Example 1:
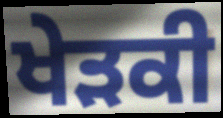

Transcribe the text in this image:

ਖੇੜਕੀ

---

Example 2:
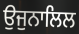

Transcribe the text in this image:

ਉਜੁਨਾਲਿਲ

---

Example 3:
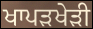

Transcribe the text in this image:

ਖਾਪੜਖੇੜੀ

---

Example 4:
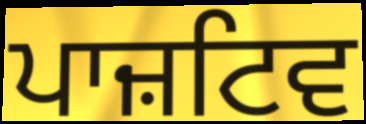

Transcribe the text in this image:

ਪਾਜ਼ਟਿਵ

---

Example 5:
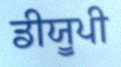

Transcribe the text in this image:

ਡੀਯੂਪੀ